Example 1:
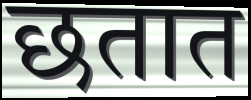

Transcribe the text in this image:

छतात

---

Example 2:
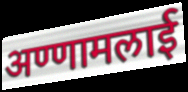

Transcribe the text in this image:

अण्णामलाई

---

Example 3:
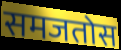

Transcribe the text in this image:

समजतोस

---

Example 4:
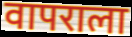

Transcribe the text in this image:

वापराला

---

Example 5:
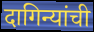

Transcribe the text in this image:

दागिन्यांची